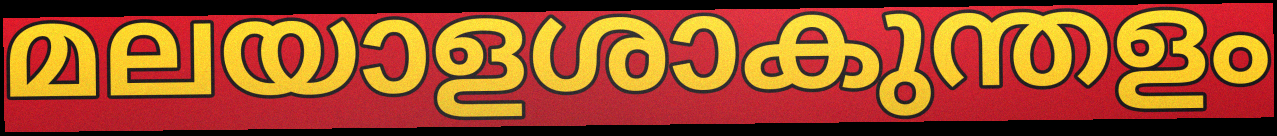
മലയാളശാകുന്തളം